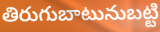
తిరుగుబాటునుబట్టి